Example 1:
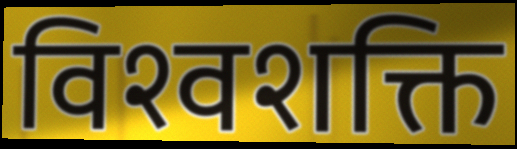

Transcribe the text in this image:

विश्वशक्ति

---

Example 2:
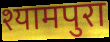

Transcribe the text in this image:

श्यामपुरा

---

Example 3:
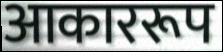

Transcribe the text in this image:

आकाररूप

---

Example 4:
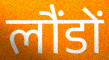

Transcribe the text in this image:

लौंडों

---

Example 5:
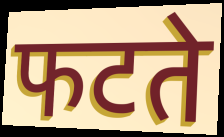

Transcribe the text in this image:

फटते